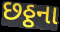
છઠ્ઠના